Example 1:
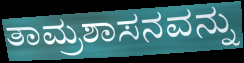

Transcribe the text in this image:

ತಾಮ್ರಶಾಸನವನ್ನು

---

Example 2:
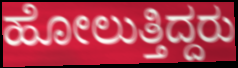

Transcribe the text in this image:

ಹೋಲುತ್ತಿದ್ದರು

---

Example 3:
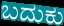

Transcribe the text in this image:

ಬದುಕು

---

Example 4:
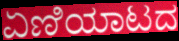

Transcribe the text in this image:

ಏಣಿಯಾಟದ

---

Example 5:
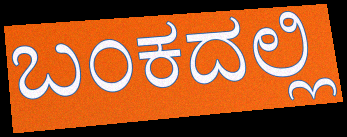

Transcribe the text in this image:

ಬಂಕದಲ್ಲಿ